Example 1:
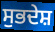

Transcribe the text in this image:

ਸੁਭਦੇਸ਼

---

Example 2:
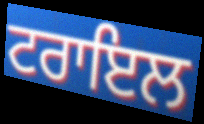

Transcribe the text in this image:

ਟਰਾਇਲ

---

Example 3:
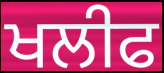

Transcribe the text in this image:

ਖਲੀਫ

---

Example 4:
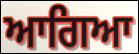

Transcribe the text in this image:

ਆਗਿਆ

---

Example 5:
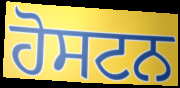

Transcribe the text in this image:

ਹੋਸਟਨ